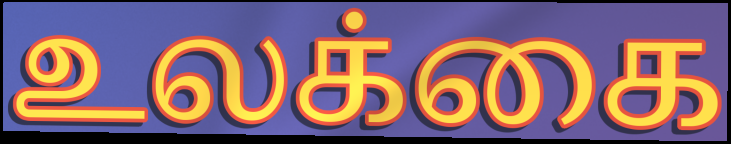
உலக்கை